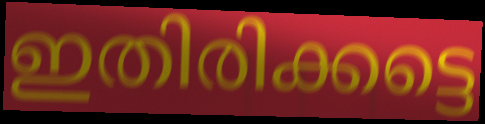
ഇതിരിക്കട്ടെ